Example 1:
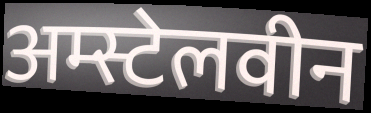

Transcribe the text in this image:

अम्स्टेलवीन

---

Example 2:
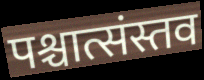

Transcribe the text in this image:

पश्चात्संस्तव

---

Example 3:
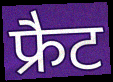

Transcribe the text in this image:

फ्रैट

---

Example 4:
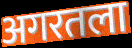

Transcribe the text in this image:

अगरतला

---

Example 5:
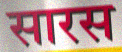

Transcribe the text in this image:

सारस